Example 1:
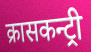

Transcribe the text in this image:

क्रासकन्ट्री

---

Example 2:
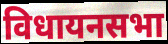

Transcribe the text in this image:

विधायनसभा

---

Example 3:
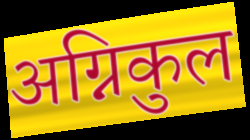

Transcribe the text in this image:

अग्निकुल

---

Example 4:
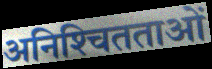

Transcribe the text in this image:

अनिश्‍चितताओं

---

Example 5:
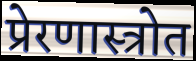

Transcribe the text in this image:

प्रेरणास्त्रोत